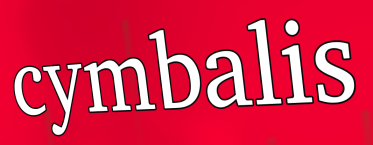
cymbalis